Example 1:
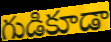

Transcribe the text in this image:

గుడికూడా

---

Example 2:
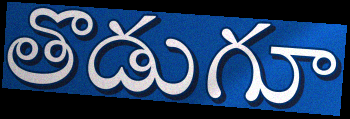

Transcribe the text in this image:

తొడుగూ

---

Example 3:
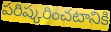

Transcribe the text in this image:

పరిష్కరించటానికి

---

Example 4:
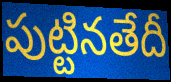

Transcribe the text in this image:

పుట్టినతేదీ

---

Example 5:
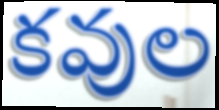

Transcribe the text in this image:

కవుల